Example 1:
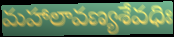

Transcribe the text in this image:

మహాలావణ్యశేవధిః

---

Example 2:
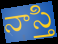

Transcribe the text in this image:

నాస్తి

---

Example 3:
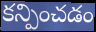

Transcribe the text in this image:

కన్పించడం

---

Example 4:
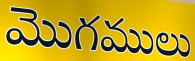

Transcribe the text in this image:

మొగములు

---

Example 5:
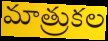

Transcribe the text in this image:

మాత్రుకల